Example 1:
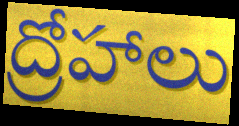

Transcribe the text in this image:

ద్రోహాలు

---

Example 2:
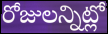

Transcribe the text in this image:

రోజులన్నిట్లో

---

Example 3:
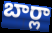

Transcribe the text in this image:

బార్లా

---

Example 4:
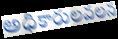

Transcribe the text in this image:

అధికారులవలన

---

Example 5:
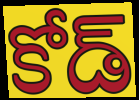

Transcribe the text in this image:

కోడ్